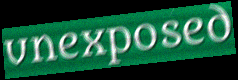
unexposed